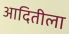
आदितीला